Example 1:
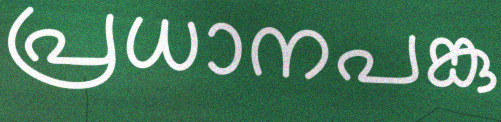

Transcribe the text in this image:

പ്രധാനപങ്കു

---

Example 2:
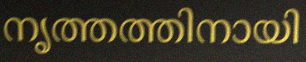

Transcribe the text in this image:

നൃത്തത്തിനായി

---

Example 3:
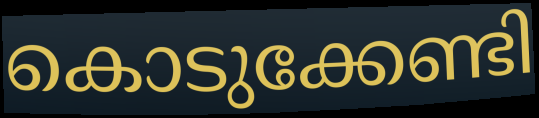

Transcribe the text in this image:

കൊടുക്കേണ്ടി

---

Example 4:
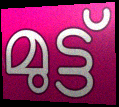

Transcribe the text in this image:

മുട്ട്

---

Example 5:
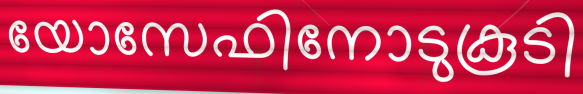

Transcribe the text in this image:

യോസേഫിനോടുകൂടി